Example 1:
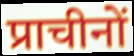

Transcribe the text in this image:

प्राचीनों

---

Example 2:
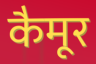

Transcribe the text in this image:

कैमूर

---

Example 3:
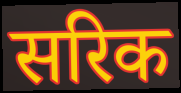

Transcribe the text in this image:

सरिक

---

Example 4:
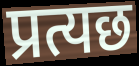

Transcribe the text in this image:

प्रत्यछ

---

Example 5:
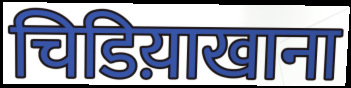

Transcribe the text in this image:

चिडिय़ाखाना